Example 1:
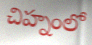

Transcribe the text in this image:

చిహ్నంలో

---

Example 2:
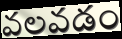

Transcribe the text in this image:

వలవడం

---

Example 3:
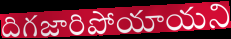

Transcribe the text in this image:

దిగజారిపోయాయని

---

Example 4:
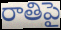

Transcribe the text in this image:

రాతిపై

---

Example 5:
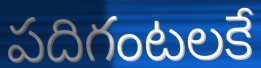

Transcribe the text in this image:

పదిగంటలకే